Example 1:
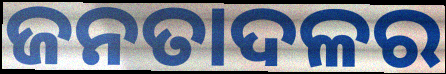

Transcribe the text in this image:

ଜନତାଦଳର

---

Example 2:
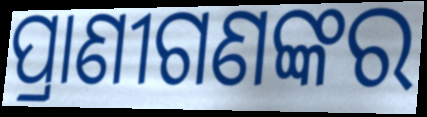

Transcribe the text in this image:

ପ୍ରାଣୀଗଣଙ୍କର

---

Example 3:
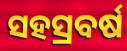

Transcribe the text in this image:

ସହସ୍ରବର୍ଷ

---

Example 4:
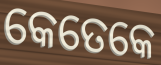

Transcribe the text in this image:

କେତେକେ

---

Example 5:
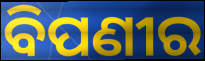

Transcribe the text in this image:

ବିପଣୀର